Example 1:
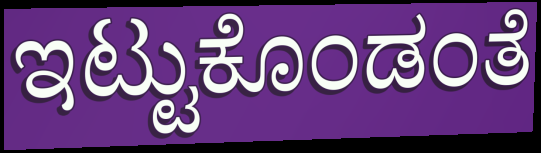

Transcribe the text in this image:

ಇಟ್ಟುಕೊಂಡಂತೆ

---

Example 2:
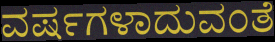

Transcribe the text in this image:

ವರ್ಷಗಳಾದುವಂತೆ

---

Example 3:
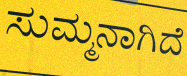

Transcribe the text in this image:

ಸುಮ್ಮನಾಗಿದೆ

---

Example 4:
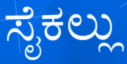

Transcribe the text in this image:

ಸೈಕಲ್ಲು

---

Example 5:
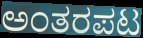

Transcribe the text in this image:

ಅಂತರಪಟ